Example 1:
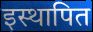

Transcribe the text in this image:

इस्थापित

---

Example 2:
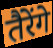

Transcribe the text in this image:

तैरेंगे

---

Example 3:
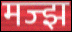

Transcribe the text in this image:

मज्झ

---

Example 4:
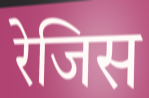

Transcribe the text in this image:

रेजिस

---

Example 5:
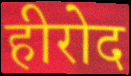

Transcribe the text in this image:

हीरोद